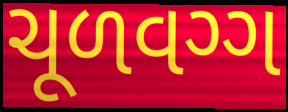
ચૂળવગ્ગ